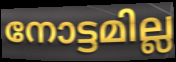
നോട്ടമില്ല